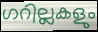
ഗറില്ലകളും